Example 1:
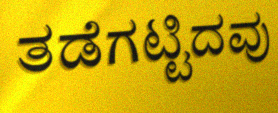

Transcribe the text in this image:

ತಡೆಗಟ್ಟಿದವು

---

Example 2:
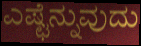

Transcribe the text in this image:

ಎಷ್ಟೆನ್ನುವುದು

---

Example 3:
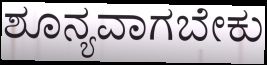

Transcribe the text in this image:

ಶೂನ್ಯವಾಗಬೇಕು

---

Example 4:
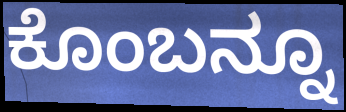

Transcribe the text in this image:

ಕೊಂಬನ್ನೂ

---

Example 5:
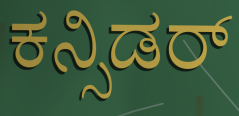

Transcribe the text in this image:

ಕನ್ಸಿಡರ್